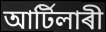
আৰ্টিলাৰী